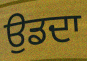
ਉਡਦਾ